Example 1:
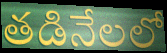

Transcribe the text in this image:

తడినేలలో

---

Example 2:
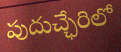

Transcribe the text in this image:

పుదుచ్ఛేరిలో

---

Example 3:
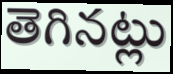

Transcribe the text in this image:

తెగినట్లు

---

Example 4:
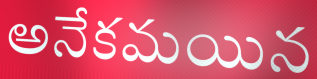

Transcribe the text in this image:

అనేకమయిన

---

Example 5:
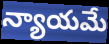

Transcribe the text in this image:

న్యాయమే